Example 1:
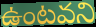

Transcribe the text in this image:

ఉంటవని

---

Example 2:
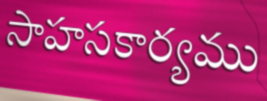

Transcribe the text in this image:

సాహసకార్యము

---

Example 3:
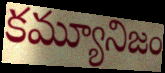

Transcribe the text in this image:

కమ్యూనిజం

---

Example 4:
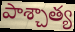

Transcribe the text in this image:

పాశ్చాత్య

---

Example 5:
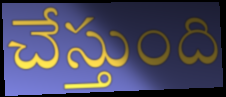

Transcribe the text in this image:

చేస్తుంది